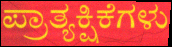
ಪ್ರಾತ್ಯಕ್ಷಿಕೆಗಳು